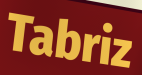
Tabriz